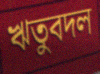
ঋতুবদল